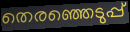
തെരഞ്ഞെടുപ്പ്